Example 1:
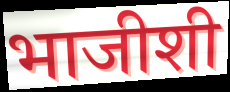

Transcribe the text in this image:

भाजीशी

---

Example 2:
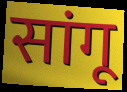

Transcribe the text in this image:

सांगू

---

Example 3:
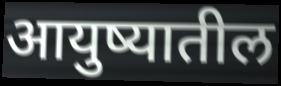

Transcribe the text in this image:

आयुष्यातील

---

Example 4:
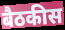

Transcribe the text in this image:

बैठकीस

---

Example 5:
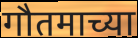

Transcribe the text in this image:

गौतमाच्या